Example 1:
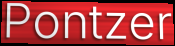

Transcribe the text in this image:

Pontzer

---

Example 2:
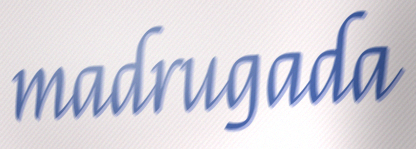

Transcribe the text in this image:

madrugada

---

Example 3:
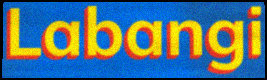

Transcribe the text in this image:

Labangi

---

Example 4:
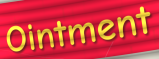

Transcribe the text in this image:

Ointment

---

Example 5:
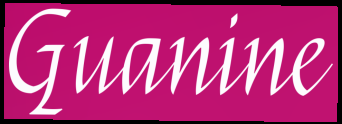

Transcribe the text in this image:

Guanine